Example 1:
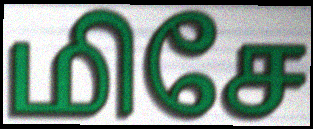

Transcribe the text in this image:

மிசே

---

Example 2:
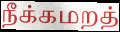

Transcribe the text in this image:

நீக்கமறத்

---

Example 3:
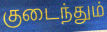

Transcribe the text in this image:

குடைந்தும்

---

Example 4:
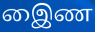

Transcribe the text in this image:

இைண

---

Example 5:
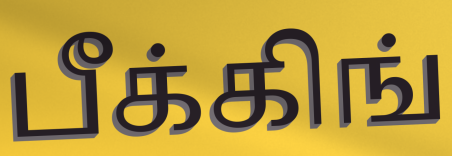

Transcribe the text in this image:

பீக்கிங்